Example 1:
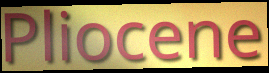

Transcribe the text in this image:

Pliocene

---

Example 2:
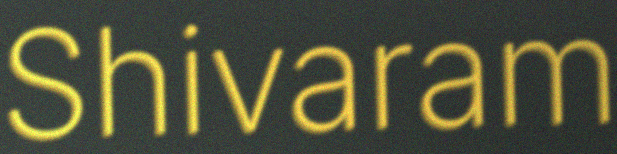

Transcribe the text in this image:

Shivaram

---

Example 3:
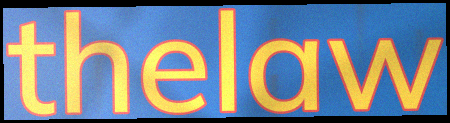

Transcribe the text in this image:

thelaw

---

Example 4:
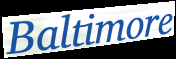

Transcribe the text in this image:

Baltimore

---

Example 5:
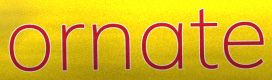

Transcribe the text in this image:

ornate